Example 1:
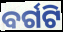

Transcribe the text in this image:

ବର୍ଗଟି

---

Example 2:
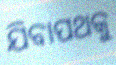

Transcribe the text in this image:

ଯିବାପଥକୁ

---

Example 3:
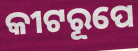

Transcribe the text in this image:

କୀଟରୂପେ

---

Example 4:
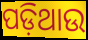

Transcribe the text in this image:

ପଡ଼ିଥାଉ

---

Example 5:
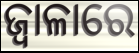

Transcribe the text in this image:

ଜ୍ୱାଳାରେ